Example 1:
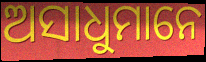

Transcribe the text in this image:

ଅସାଧୁମାନେ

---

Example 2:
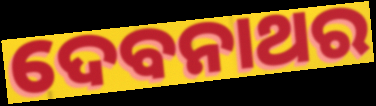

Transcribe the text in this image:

ଦେବନାଥର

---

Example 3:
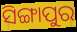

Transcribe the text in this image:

ସିଙ୍ଗାପୁର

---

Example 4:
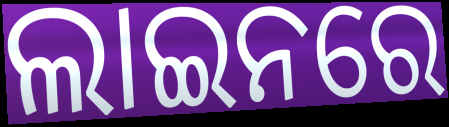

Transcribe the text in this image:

ଲାଇନରେ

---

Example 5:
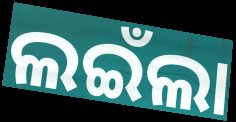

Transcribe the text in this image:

ଲଇଁଲା